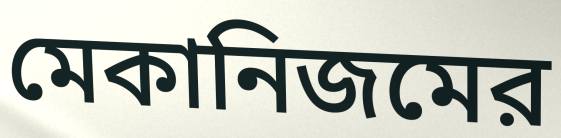
মেকানিজমের